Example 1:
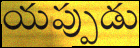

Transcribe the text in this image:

యప్పుడు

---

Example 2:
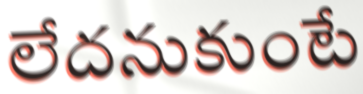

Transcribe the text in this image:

లేదనుకుంటే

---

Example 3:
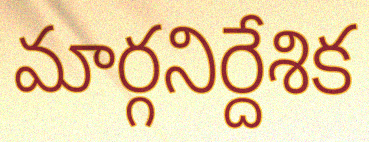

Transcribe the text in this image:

మార్గనిర్దేశిక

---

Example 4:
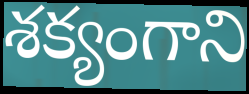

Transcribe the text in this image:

శక్యంగాని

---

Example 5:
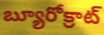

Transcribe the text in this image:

బ్యూరోక్రాట్